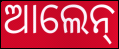
ଆଲେନ୍